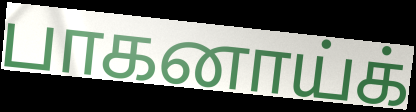
பாகனாய்க்